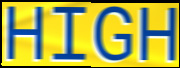
HIGH